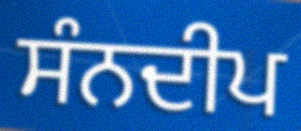
ਸੰਨਦੀਪ